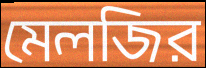
মেলজির